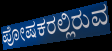
ಪೋಷಕರಲ್ಲಿರುವ